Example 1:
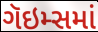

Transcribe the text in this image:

ગૅઇમ્સમાં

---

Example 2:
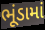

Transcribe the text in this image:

ભૂંડામાં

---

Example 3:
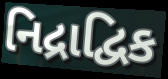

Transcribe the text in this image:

નિદ્રાદ્વિક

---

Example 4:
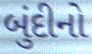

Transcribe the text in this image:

બુંદીનો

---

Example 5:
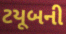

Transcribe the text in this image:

ટયૂબની